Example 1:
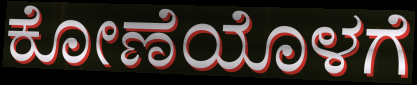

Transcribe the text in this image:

ಕೋಣೆಯೊಳಗೆ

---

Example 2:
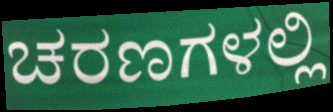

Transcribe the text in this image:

ಚರಣಗಳಲ್ಲಿ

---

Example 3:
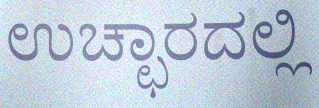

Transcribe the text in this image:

ಉಚ್ಛಾರದಲ್ಲಿ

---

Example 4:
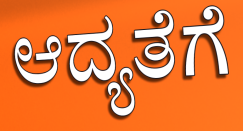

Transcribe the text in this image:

ಆದ್ಯತೆಗೆ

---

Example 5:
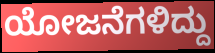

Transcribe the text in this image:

ಯೋಜನೆಗಳಿದ್ದು